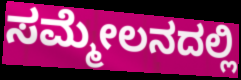
ಸಮ್ಮೇಲನದಲ್ಲಿ